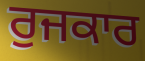
ਰੁਜਕਾਰ